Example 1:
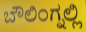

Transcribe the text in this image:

ಬೌಲಿಂಗ್ನಲ್ಲಿ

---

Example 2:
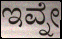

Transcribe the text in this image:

ಇವ್ನೇ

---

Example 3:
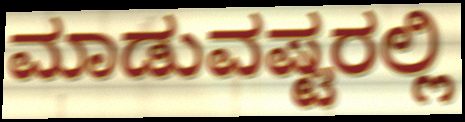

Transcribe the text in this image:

ಮಾಡುವಷ್ಟರಲ್ಲಿ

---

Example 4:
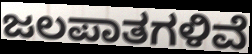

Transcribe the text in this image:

ಜಲಪಾತಗಳಿವೆ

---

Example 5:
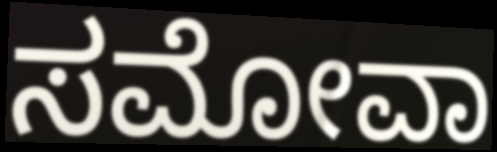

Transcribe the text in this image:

ಸಮೋವಾ